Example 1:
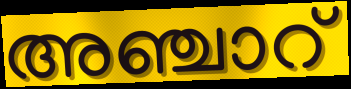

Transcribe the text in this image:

അഞ്ചാറ്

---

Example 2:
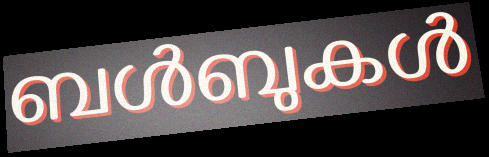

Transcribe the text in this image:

ബൾബുകൾ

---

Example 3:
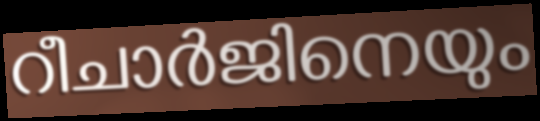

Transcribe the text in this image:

റീചാർജിനെയും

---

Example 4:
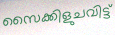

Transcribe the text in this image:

സൈക്കിളുചവിട്ട്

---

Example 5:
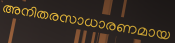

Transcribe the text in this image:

അനിതരസാധാരണമായ